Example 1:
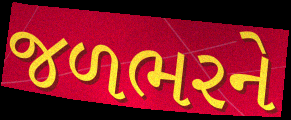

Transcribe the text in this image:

જળભરને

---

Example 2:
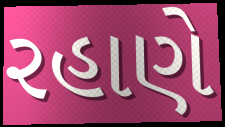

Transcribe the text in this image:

રહાણે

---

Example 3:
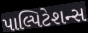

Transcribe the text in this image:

પાલ્પિટેશન્સ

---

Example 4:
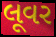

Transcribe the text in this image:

લૂવર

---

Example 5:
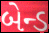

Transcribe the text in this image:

બેન્ડ